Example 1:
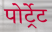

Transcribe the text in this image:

पोर्ट्रेट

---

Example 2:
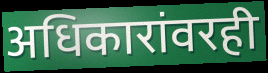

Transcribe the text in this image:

अधिकारांवरही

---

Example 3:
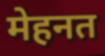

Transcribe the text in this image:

मेहनत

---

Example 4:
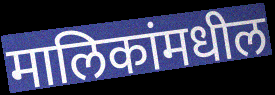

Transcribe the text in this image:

मालिकांमधील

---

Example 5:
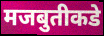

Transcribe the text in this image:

मजबुतीकडे